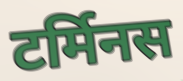
टर्मिनस